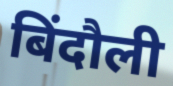
बिंदौली